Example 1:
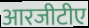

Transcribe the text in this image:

आरजीटीए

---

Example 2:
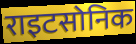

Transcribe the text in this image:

राइटसोनिक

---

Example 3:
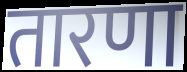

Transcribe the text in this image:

तारणा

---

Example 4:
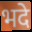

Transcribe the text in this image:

भदे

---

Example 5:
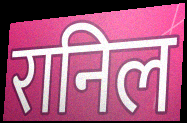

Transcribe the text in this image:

रानिल